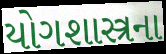
યોગશાસ્ત્રના